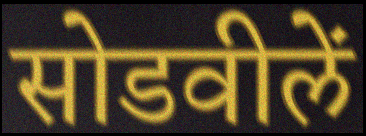
सोडवीलें